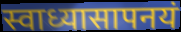
स्वाध्यासापनयं